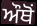
ਔਥੋਂ